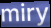
miry